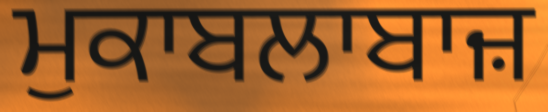
ਮੁਕਾਬਲਾਬਾਜ਼